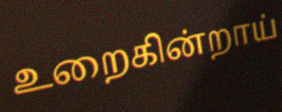
உறைகின்றாய்